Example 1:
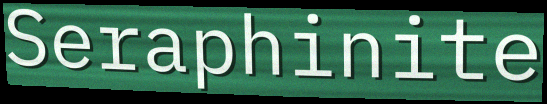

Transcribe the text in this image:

Seraphinite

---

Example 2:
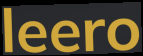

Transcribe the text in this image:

leero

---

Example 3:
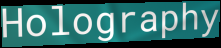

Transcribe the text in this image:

Holography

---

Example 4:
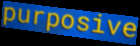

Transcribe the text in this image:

purposive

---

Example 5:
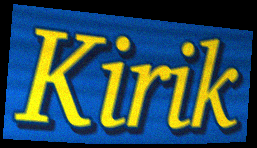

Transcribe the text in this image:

Kirik